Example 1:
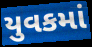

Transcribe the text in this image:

યુવકમાં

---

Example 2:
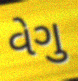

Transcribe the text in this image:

વેગુ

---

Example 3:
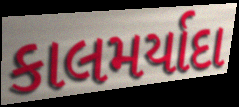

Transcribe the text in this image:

કાલમર્યાદા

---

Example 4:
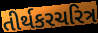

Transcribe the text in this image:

તીર્થકરચરિત્ર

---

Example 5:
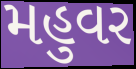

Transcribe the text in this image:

મહુવર